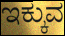
ಇಕ್ಕುವ